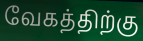
வேகத்திற்கு